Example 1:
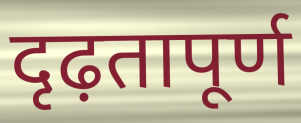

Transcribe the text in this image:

दृढ़तापूर्ण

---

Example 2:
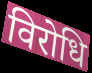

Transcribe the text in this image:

विरोधि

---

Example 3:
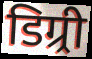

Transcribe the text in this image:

डिग्र्री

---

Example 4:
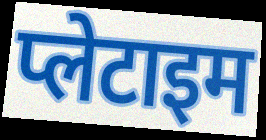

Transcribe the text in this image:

प्लेटाइम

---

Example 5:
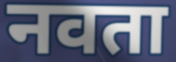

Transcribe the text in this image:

नवता